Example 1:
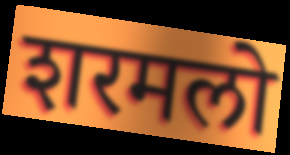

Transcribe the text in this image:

शरमलो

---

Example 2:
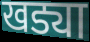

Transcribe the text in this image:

खड्या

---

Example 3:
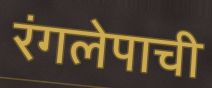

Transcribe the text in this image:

रंगलेपाची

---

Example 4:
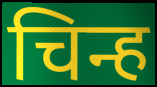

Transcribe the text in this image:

चिन्ह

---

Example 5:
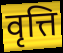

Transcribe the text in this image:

वृत्ति